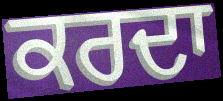
ਕਰਦਾ